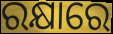
ରକ୍ଷାରେ